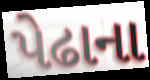
પેઢાના